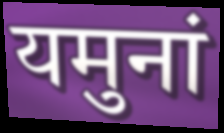
यमुनां